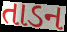
તાડન